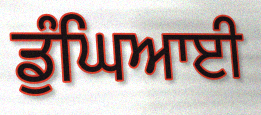
ਡੁੰਘਿਆਈ